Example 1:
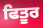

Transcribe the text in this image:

ਫਿਤੂਰ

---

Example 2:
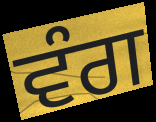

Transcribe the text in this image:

ਵੰਗ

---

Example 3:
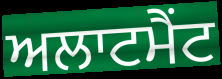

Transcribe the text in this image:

ਅਲਾਟਮੈਂਟ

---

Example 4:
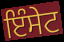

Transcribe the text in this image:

ਇੰਸੇਟ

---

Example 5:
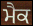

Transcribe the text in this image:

ਮੈਕ